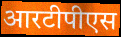
आरटीपीएस